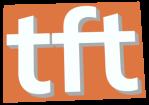
tft